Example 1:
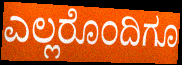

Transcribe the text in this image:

ಎಲ್ಲರೊಂದಿಗೂ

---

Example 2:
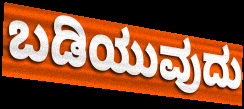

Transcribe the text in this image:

ಬಡಿಯುವುದು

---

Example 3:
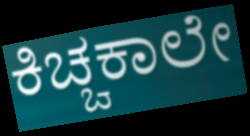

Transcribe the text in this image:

ಕಿಚ್ಚಕಾಲೇ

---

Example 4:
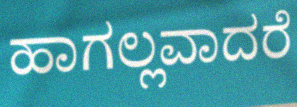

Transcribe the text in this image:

ಹಾಗಲ್ಲವಾದರೆ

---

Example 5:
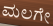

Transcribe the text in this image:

ಮಲಗೇ